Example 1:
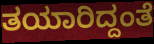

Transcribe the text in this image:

ತಯಾರಿದ್ದಂತೆ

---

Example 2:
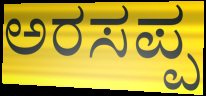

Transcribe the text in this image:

ಅರಸಪ್ಪ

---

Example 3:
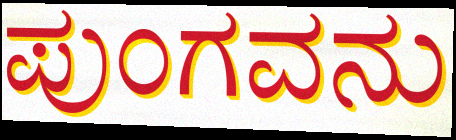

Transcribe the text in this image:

ಪುಂಗವನು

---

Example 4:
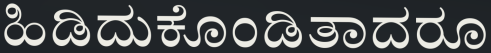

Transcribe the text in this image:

ಹಿಡಿದುಕೊಂಡಿತಾದರೂ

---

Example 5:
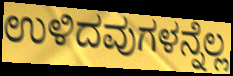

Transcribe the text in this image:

ಉಳಿದವುಗಳನ್ನೆಲ್ಲ